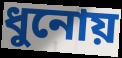
ধুনোয়